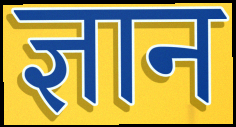
ज्ञान